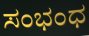
ಸಂಭಂಧ